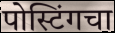
पोस्टिंगचा